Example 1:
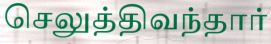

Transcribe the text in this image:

செலுத்திவந்தார்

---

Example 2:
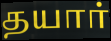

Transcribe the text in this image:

தயார்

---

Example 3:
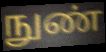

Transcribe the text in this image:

நுண்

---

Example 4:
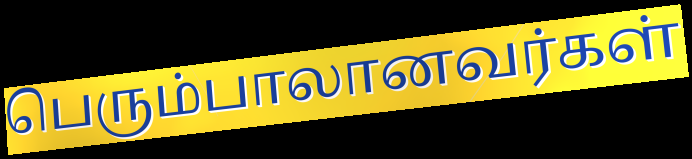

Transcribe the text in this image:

பெரும்பாலானவர்கள்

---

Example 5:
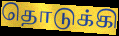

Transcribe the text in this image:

தொடுக்கி